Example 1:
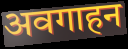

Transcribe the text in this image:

अवगाहन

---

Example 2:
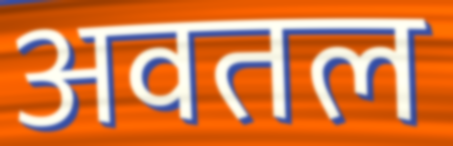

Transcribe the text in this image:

अवतल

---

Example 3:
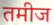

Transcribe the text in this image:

तमीज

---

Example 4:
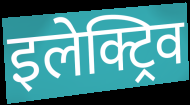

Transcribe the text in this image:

इलेक्ट्रिव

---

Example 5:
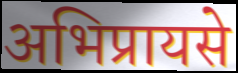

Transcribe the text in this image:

अभिप्रायसे